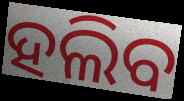
ହଲିବ